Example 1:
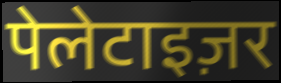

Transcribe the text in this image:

पेलेटाइज़र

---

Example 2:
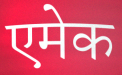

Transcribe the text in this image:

एमेक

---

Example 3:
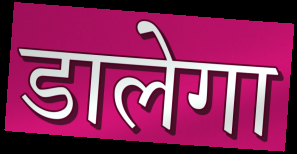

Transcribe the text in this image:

डालेगा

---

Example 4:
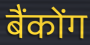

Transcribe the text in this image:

बैंकोंग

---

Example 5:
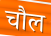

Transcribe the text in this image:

चौल